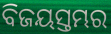
ବିଜୟସ୍ତମ୍ଭର